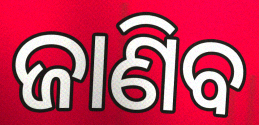
ଜାଣିବ